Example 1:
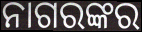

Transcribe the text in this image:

ନାଗରଙ୍କର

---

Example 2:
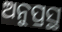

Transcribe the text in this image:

ଅନୁପ୍ରସ୍ଥ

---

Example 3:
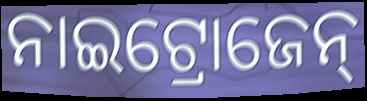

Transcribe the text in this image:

ନାଇଟ୍ରୋଜେନ୍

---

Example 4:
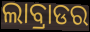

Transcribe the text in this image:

ଲାବ୍ରାଡର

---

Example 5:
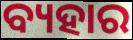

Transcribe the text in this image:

ବ୍ୟହାର